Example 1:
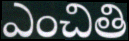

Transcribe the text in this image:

ఎంచితి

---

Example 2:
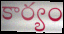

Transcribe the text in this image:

కార్యం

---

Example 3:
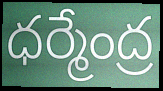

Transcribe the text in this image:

ధర్మేంద్ర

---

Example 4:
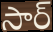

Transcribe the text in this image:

సార్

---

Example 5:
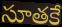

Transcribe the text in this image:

సూతకే